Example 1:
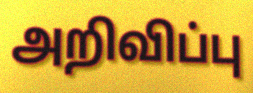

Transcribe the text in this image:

அறிவிப்பு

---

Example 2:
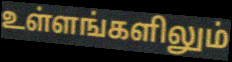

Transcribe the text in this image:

உள்ளங்களிலும்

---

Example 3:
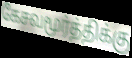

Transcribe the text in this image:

கேசவமூர்த்திக்கு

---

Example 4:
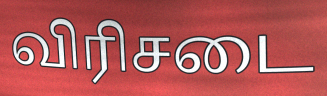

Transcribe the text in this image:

விரிசடை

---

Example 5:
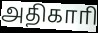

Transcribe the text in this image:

அதிகாரி